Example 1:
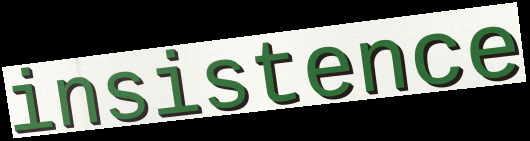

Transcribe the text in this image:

insistence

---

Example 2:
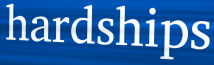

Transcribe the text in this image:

hardships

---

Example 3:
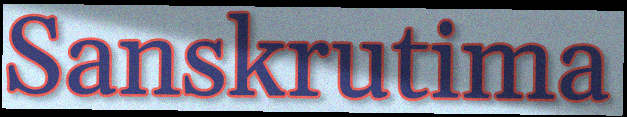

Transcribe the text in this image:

Sanskrutima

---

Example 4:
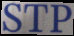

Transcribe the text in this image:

STP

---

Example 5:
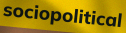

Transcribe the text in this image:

sociopolitical